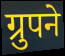
ग्रुपने